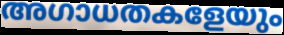
അഗാധതകളേയും